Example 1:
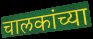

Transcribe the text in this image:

चालकांच्या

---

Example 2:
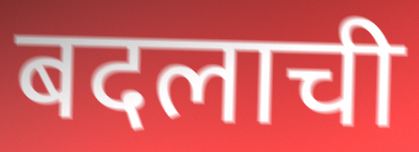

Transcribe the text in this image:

बदलाची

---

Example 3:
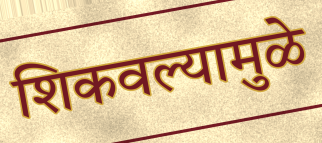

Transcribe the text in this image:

शिकवल्यामुळे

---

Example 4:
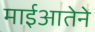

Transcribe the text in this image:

माईआतेने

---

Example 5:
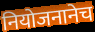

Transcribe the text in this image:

नियोजनानेच